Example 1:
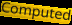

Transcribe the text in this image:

Computed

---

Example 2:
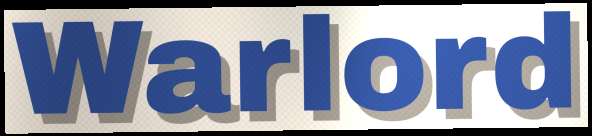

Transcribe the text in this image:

Warlord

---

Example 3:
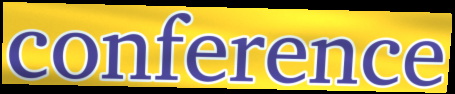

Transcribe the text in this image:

conference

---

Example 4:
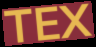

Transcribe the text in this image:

TEX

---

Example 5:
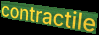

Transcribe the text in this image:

contractile